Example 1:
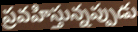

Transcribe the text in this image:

ప్రవహిస్తున్నప్పుడు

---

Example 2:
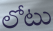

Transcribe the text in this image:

లోటు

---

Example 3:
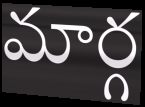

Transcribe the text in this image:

మార్గ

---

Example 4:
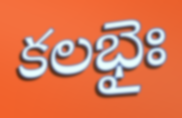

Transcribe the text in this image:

కలభైః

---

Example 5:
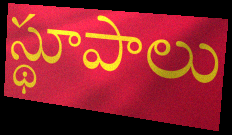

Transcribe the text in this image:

స్థూపాలు